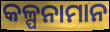
କଳ୍ପନାମାନ